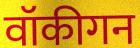
वॉकीगन